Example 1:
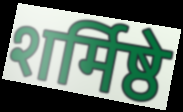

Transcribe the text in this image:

शर्मिष्ठे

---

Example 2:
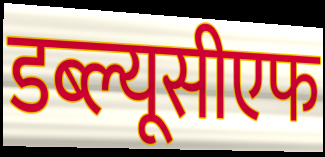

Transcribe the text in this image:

डब्ल्यूसीएफ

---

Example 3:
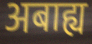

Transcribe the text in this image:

अबाह्य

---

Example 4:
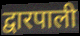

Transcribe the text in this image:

द्वारपाली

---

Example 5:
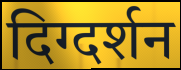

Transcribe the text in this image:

दिग्दर्शन